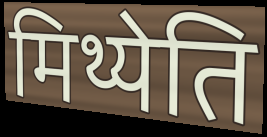
मिथ्येति